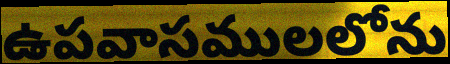
ఉపవాసములలోను